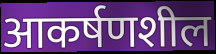
आकर्षणशील